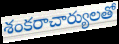
శంకరాచార్యులతో